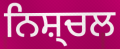
ਨਿਸ਼੍ਚਲ